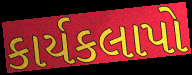
કાર્યકલાપો